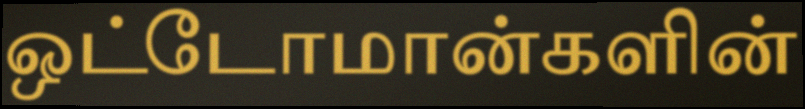
ஒட்டோமான்களின்